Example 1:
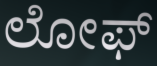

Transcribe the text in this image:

ಲೋಫ್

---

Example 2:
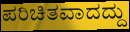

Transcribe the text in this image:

ಪರಿಚಿತವಾದದ್ದು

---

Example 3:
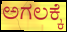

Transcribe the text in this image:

ಅಗಲಕ್ಕೆ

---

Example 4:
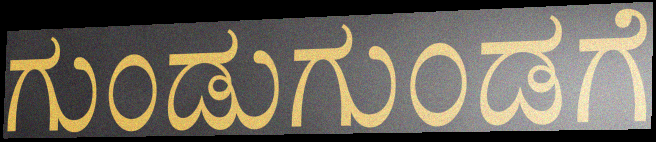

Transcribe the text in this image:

ಗುಂಡುಗುಂಡಗೆ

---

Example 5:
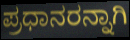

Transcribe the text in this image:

ಪ್ರಧಾನರನ್ನಾಗಿ